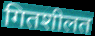
गितशीलत